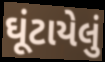
ઘૂંટાયેલું